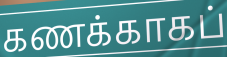
கணக்காகப்